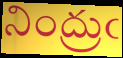
నింద్రుఁ